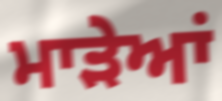
ਮਾੜੇਆਂ